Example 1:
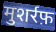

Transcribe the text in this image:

मुशर्रफ़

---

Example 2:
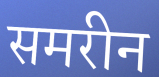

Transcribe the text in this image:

समरीन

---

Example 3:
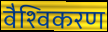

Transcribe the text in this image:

वैश्विकरण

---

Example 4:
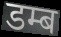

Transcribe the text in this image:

डम्ब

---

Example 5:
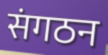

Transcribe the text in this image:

संगठन